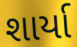
શાર્યા